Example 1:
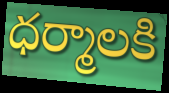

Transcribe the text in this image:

ధర్మాలకి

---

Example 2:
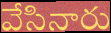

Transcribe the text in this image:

వేసినారు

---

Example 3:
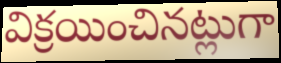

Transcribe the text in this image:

విక్రయించినట్లుగా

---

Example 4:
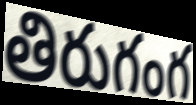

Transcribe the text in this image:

తిరుగంగ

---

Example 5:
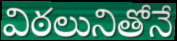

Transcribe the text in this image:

విఠలునితోనే